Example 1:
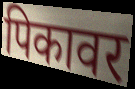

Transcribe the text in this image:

पिकावर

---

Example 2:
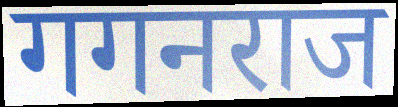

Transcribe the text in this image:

गगनराज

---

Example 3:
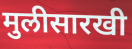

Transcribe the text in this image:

मुलीसारखी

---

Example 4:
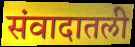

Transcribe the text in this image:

संवादातली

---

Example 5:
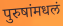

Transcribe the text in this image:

पुरुषांमधलं